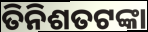
ତିନିଶତଟଙ୍କା